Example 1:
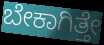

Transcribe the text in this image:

ಬೇಕಾಗಿತ್ತೇ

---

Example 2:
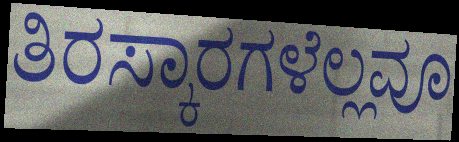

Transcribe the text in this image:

ತಿರಸ್ಕಾರಗಳೆಲ್ಲವೂ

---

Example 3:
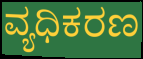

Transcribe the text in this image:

ವ್ಯಧಿಕರಣ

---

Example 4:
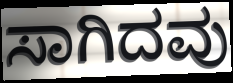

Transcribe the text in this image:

ಸಾಗಿದವು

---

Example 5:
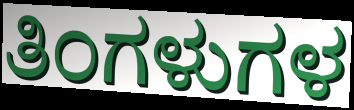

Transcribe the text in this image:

ತಿಂಗಳುಗಳ